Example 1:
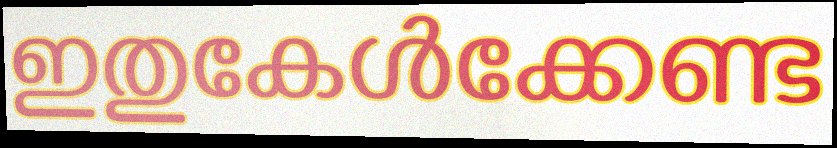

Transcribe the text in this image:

ഇതുകേൾക്കേണ്ട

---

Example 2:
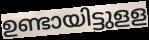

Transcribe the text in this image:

ഉണ്ടായിട്ടുളള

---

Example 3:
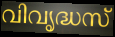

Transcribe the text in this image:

വിവൃദ്ധസ്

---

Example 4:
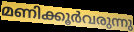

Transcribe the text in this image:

മണിക്കൂർവരുന്നു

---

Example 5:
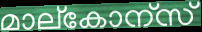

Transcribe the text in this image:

മാല്കോന്സ്